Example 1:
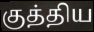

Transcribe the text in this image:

குத்திய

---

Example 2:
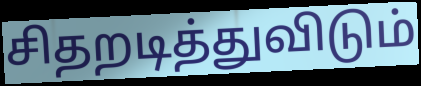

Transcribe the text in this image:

சிதறடித்துவிடும்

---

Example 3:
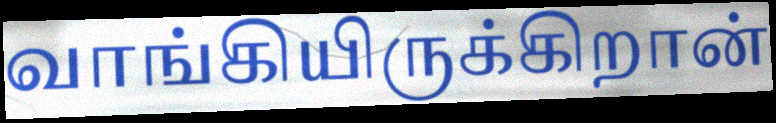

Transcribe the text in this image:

வாங்கியிருக்கிறான்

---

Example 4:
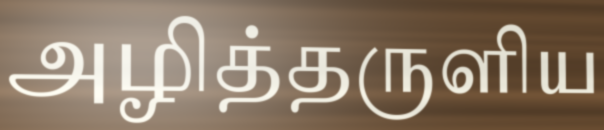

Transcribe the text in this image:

அழித்தருளிய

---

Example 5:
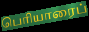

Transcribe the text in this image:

பெரியாரைப்